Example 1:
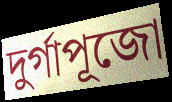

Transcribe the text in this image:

দুর্গাপূজো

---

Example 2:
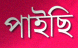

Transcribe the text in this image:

পাইছি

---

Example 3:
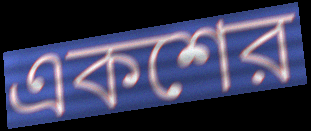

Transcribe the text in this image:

একশের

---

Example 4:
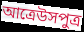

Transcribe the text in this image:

আত্রেউসপুত্র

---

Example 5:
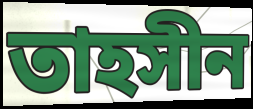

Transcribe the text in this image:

তাহসীন